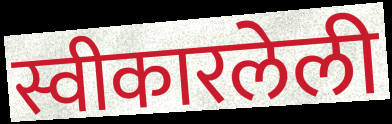
स्वीकारलेली